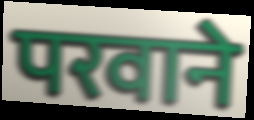
परवाने